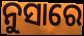
ନୁସାରେ